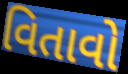
વિતાવો